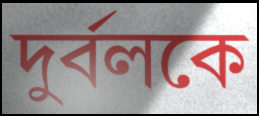
দুর্বলকে